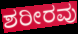
ಶರೀರವು